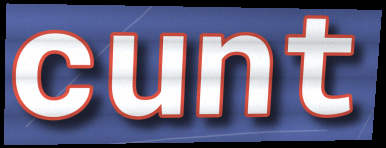
cunt